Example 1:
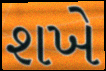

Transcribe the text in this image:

શખે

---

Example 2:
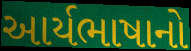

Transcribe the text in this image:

આર્યભાષાનો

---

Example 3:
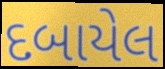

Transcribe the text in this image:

દબાયેલ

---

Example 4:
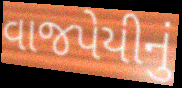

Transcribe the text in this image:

વાજપેયીનું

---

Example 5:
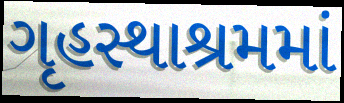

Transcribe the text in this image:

ગૃહસ્થાશ્રમમાં